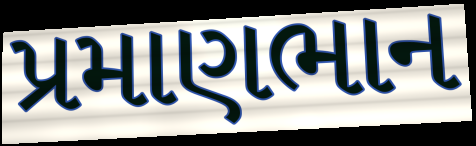
પ્રમાણભાન